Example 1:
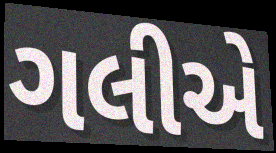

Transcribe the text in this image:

ગલીએ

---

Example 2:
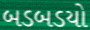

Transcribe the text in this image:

બડબડયો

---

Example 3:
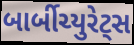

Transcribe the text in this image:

બાર્બીચ્યુરેટ્સ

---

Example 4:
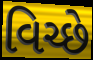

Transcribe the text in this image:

વિચ્છે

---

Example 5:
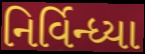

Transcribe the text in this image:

નિર્વિન્ધ્યા